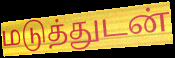
மடுத்துடன்